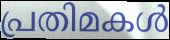
പ്രതിമകൾ